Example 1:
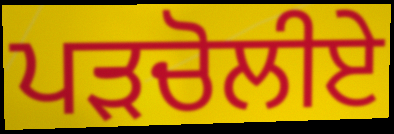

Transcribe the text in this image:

ਪੜਚੋਲੀਏ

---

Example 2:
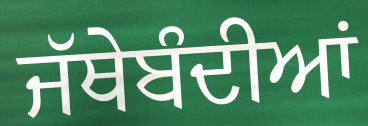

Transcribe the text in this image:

ਜੱਥੇਬੰਦੀਆਂ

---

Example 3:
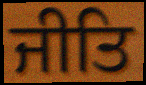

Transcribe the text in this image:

ਜੀਤਿ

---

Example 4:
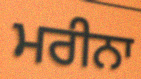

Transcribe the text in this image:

ਮਰੀਨਾ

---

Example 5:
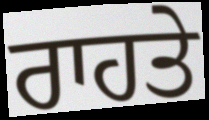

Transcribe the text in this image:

ਰਾਹਤੇ